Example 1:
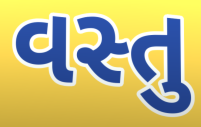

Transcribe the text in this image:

વસ્તુ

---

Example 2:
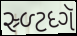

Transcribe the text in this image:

સ્ર્ળ્ટધ્ગૅ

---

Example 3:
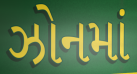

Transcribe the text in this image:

ઝોનમાં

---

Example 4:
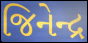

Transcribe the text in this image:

જિનેન્દ્ર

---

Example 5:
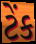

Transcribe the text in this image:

ટેંક